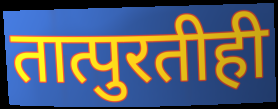
तात्पुरतीही